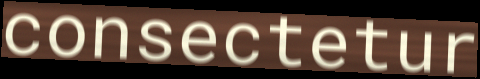
consectetur